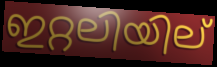
ഇറ്റലിയില്